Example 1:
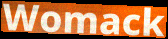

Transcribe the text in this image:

Womack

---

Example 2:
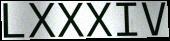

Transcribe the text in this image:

LXXXIV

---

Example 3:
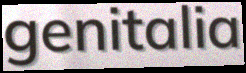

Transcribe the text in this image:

genitalia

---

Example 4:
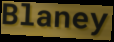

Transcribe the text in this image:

Blaney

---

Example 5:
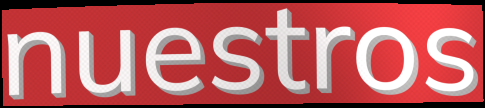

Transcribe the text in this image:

nuestros